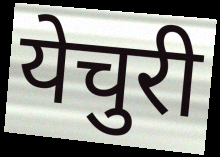
येचुरी